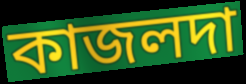
কাজলদা